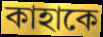
কাহাকে